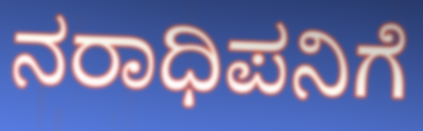
ನರಾಧಿಪನಿಗೆ